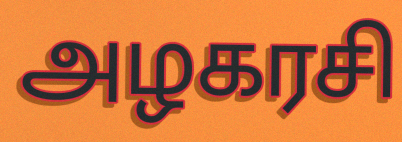
அழகரசி